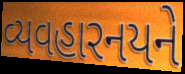
વ્યવહારનયને